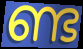
ണ്ട